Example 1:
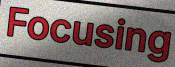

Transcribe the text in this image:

Focusing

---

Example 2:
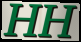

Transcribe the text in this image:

HH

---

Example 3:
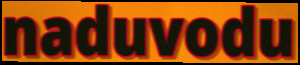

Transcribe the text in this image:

naduvodu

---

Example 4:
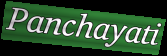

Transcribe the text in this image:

Panchayati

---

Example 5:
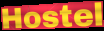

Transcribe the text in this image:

Hostel